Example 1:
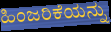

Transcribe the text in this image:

ಹಿಂಜರಿಕೆಯನ್ನು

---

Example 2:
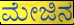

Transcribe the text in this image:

ಮೇಜಿನ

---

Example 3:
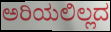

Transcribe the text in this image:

ಅರಿಯಲಿಲ್ಲದ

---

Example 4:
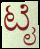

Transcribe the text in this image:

ಟೈ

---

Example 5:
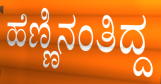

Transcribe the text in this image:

ಹೆಣ್ಣಿನಂತಿದ್ದ